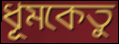
ধূমকেতু